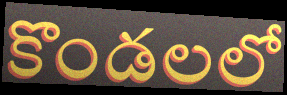
కొండలలో